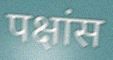
पक्षांस